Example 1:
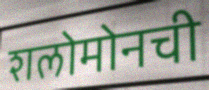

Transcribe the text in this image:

शलोमोनची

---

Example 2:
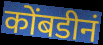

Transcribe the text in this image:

कोंबडीनं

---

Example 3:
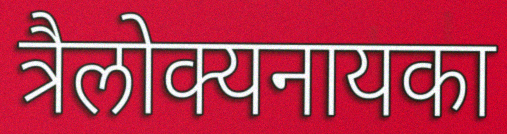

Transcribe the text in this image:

त्रैलोक्यनायका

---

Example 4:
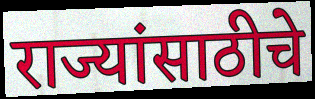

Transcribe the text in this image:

राज्यांसाठीचे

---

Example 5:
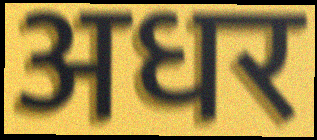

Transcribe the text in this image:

अधर